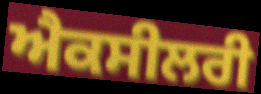
ਐਕਸੀਲਰੀ